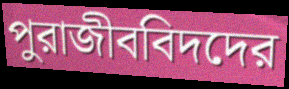
পুরাজীববিদদের